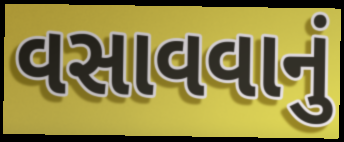
વસાવવાનું